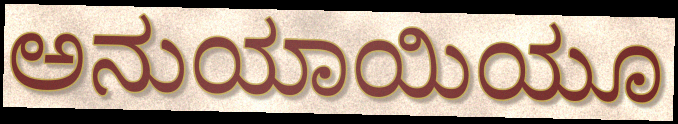
ಅನುಯಾಯಿಯೂ